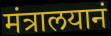
मंत्रालयानं